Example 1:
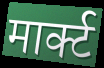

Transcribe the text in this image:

मार्क्ट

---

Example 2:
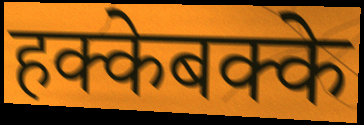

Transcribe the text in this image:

हक्केबक्के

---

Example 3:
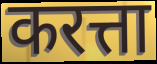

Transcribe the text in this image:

करत्ता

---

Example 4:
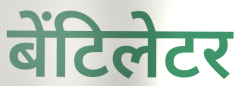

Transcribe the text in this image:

बेंटिलेटर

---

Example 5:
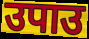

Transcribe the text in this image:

उपाउ